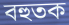
বহুতক